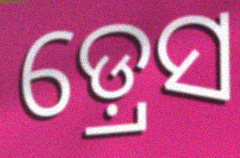
ଡ଼୍ରେସ